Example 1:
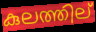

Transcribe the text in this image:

കുലത്തില്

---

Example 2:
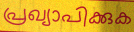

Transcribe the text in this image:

പ്രഖ്യാപിക്കുക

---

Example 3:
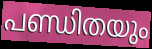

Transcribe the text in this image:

പണ്ഡിതയും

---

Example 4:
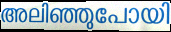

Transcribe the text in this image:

അലിഞ്ഞുപോയി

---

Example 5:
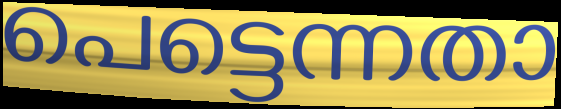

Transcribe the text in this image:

പെട്ടെന്നതാ